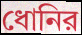
ধোনির